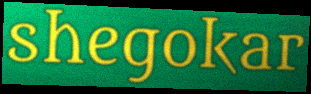
shegokar